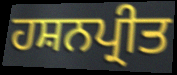
ਹਸ਼ਨਪ੍ਰੀਤ